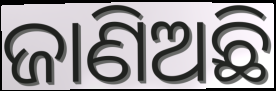
ଜାଣିଅଛି